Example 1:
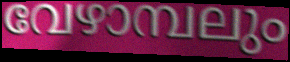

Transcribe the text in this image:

വേഴാമ്പലും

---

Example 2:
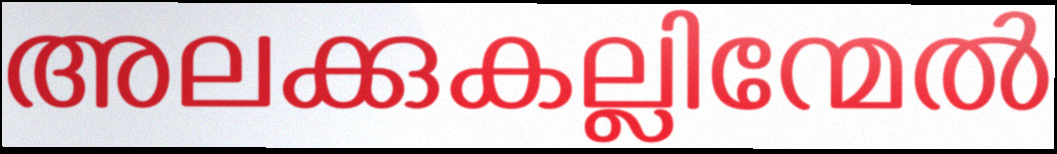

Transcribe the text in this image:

അലക്കുകല്ലിന്മേൽ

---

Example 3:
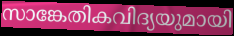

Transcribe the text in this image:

സാങ്കേതികവിദ്യയുമായി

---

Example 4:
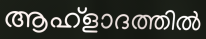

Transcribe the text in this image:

ആഹ്ളാദത്തിൽ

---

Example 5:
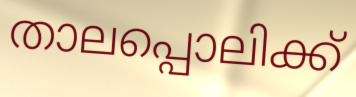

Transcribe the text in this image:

താലപ്പൊലിക്ക്